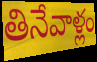
తినేవాళ్లం